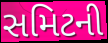
સમિટની